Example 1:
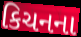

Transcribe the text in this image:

કિચનના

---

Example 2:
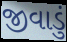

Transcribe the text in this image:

જીવાડું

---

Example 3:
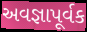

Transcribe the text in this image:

અવજ્ઞાપૂર્વક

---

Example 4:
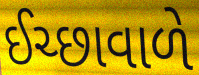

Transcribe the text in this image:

ઈચ્છાવાળે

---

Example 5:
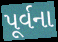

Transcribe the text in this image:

પૂર્વના